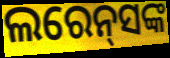
ଲରେନ୍‌ସଙ୍କ